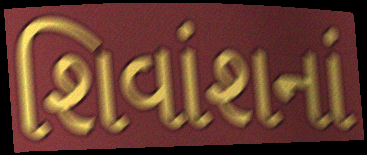
શિવાંશનાં